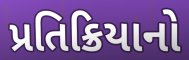
પ્રતિક્રિયાનો